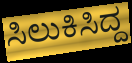
ಸಿಲುಕಿಸಿದ್ದ